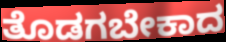
ತೊಡಗಬೇಕಾದ